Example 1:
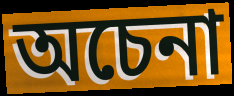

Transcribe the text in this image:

অচেনা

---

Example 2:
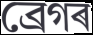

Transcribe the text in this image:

ব্ৰেগৰ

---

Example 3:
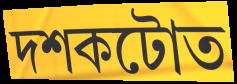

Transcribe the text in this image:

দশকটোত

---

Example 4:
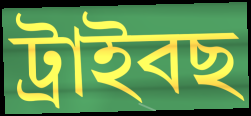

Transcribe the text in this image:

ট্ৰাইবছ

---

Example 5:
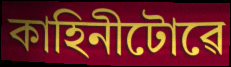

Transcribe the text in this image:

কাহিনীটোৱে